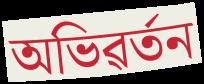
অভিৱৰ্তন